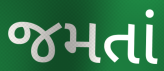
જમતાં